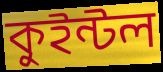
কুইন্টল